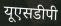
यूएसडीपी